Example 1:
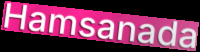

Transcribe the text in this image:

Hamsanada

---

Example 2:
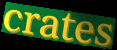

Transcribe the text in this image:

crates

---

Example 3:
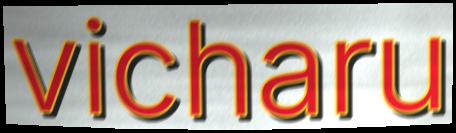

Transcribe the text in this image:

vicharu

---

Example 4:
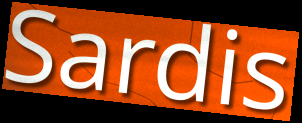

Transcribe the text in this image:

Sardis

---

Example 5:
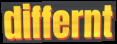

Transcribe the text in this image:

differnt